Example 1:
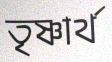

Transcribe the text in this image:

তৃষ্ণার্থ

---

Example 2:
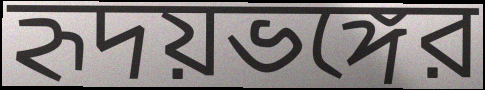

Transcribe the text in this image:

হৃদয়ভঙ্গের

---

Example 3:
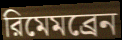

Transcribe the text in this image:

রিমেমব্রেন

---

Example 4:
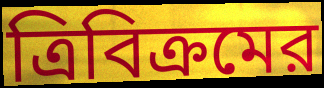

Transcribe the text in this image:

ত্রিবিক্রমের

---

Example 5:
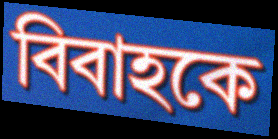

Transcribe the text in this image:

বিবাহকে